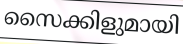
സൈക്കിളുമായി